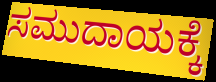
ಸಮುದಾಯಕ್ಕೆ